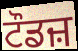
ਟੌਡਜ਼